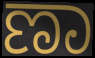
ಣಾ